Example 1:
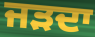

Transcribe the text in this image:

ਜੜਦਾ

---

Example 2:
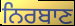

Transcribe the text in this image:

ਨਿਰਬਾਣ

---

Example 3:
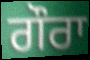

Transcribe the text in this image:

ਗੌਰਾ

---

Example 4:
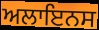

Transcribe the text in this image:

ਅਲਾਇਨਸ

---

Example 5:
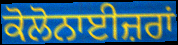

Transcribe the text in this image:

ਕੋਲੋਨਾਈਜ਼ਰਾਂ